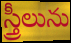
స్త్రీలును